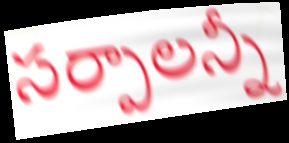
సర్పాలన్నీ